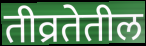
तीव्रतेतील